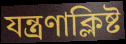
যন্ত্রণাক্লিষ্ট